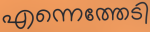
എന്നെത്തേടി